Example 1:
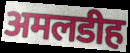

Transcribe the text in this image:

अमलडीह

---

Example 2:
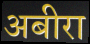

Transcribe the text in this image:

अबीरा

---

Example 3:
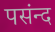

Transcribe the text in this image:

पसंन्द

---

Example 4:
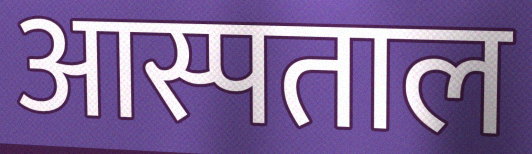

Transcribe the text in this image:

आस्पताल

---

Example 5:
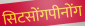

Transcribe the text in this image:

सिटसोंगपीनोंग